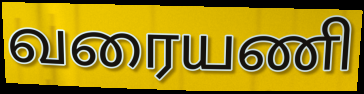
வரையணி